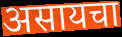
असायचा